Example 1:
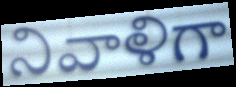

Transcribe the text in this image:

నివాళిగా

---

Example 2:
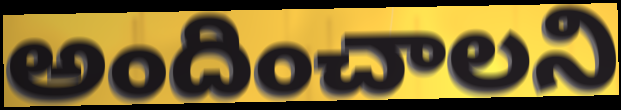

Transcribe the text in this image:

అందించాలని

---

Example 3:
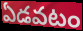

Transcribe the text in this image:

ఏడవటం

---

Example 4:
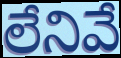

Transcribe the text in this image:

లేనివే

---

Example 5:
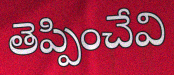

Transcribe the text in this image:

తెప్పించేవి